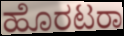
ಹೊರಟರಾ